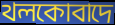
থলকোবাদে